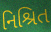
નિશ્રિત